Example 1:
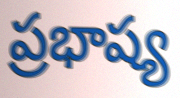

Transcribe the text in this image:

ప్రభాష్య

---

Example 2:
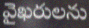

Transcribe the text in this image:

వైఖరులను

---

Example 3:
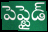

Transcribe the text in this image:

పెప్టైడ్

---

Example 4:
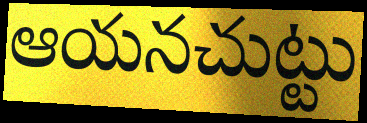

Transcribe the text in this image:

ఆయనచుట్టు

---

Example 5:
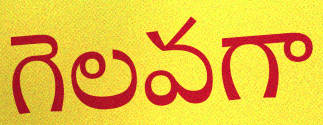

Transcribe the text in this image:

గెలవగా